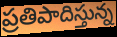
ప్రతిపాదిస్తున్న